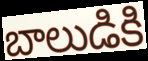
బాలుడికి